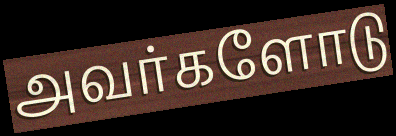
அவர்களோடு